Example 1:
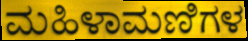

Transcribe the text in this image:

ಮಹಿಳಾಮಣಿಗಳ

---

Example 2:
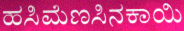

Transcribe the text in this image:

ಹಸಿಮೆಣಸಿನಕಾಯಿ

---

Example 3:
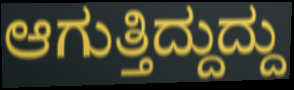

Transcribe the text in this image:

ಆಗುತ್ತಿದ್ದುದ್ದು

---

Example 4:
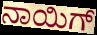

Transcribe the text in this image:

ನಾಯಿಗ್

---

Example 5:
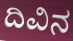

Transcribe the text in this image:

ದಿವಿನ